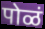
पोळं